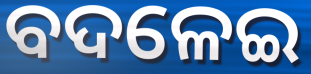
ବଦଳେଇ